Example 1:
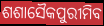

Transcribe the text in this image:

ଶଶାସୈକପୁରୀମିବ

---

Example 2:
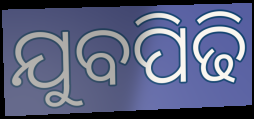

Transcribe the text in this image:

ଯୁବପିଢି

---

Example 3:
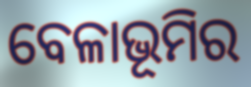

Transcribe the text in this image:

ବେଳାଭୂମିର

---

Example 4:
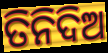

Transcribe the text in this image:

ତିନିଦିଅ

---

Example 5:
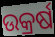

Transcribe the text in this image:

ଉକ୍ରର୍ଷ